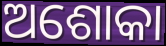
ଅଶୋକା